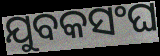
ଯୁବକସଂଘ